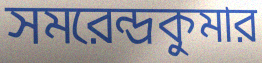
সমরেন্দ্রকুমার